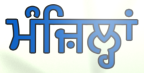
ਮੰਜ਼ਿਲ੍ਹਾਂ